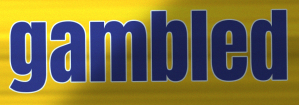
gambled